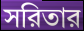
সরিতার